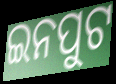
ଇନପୁଟ